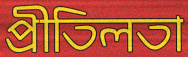
প্ৰীতিলতা